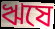
ঋষে